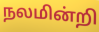
நலமின்றி